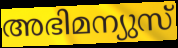
അഭിമന്യുസ്